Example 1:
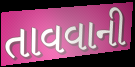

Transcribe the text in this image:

તાવવાની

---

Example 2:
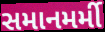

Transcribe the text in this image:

સમાનમર્મી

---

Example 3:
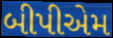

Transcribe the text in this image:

બીપીએમ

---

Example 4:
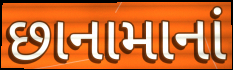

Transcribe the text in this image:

છાનામાનાં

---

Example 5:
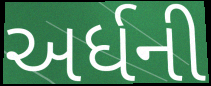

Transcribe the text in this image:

અર્ધની